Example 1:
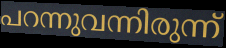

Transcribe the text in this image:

പറന്നുവന്നിരുന്ന്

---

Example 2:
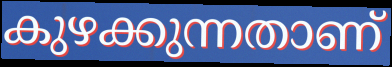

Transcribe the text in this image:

കുഴക്കുന്നതാണ്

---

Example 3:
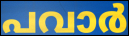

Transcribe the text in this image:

പവാർ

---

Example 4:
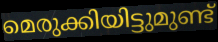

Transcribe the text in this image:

മെരുക്കിയിട്ടുമുണ്ട്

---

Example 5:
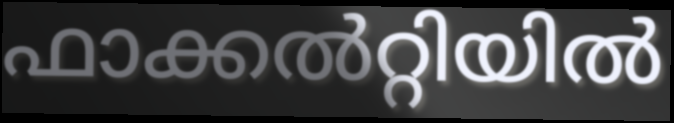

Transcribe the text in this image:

ഫാക്കൽറ്റിയിൽ